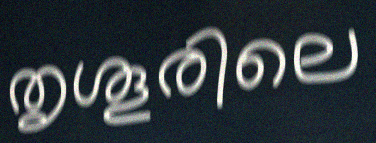
തൃശൂരിലെ